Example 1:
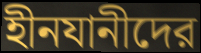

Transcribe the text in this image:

হীনযানীদের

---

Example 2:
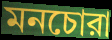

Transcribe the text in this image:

মনচোরা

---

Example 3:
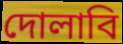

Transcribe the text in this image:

দোলাবি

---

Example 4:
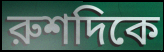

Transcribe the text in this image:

রুশদিকে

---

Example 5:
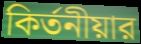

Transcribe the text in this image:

কির্তনীয়ার